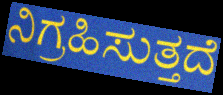
ನಿಗ್ರಹಿಸುತ್ತದೆ